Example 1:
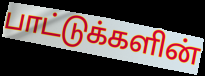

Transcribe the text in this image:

பாட்டுக்களின்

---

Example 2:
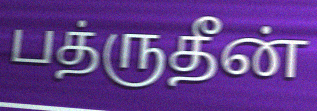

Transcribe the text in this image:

பத்ருதீன்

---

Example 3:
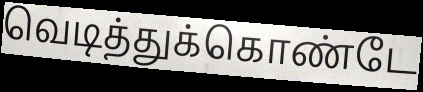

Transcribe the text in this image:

வெடித்துக்கொண்டே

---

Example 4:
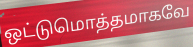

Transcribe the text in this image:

ஒட்டுமொத்தமாகவே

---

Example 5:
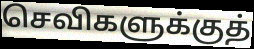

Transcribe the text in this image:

செவிகளுக்குத்